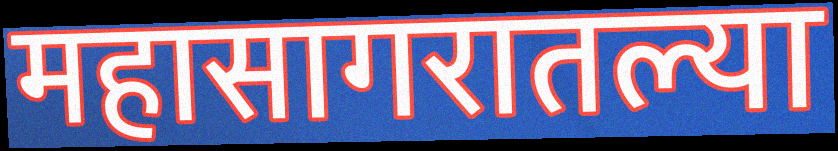
महासागरातल्या